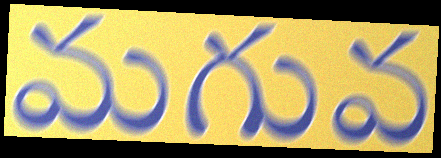
మగువ